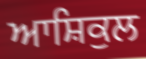
ਆਸ਼ਿਕੁਲ